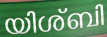
യിശ്ബി